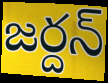
జర్దన్